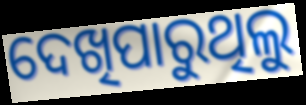
ଦେଖିପାରୁଥିଲୁ